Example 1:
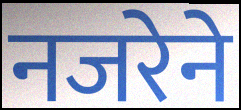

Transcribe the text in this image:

नजरेने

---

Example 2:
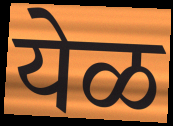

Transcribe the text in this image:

येळ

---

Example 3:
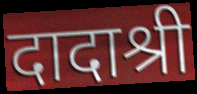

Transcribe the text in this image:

दादाश्री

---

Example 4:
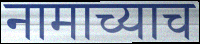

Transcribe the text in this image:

नामाच्याच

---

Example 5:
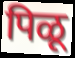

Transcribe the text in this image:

पिळू